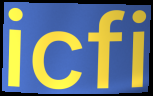
icfi